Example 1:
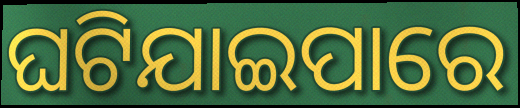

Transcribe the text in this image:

ଘଟିଯାଇପାରେ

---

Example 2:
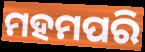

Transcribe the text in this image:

ମହମପରି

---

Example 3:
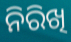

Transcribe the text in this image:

ନିରିଖି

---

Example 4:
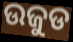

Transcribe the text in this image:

ଉଜୁଡ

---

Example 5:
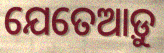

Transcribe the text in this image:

ଯେତେଆଡ଼ୁ